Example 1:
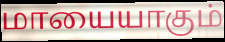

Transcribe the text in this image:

மாயையாகும்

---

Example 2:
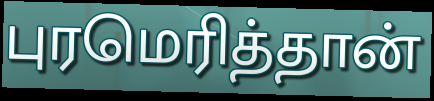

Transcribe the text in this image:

புரமெரித்தான்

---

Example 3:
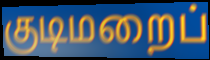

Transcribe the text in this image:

குடிமறைப்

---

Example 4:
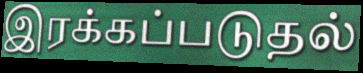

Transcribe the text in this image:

இரக்கப்படுதல்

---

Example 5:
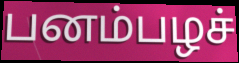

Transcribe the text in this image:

பனம்பழச்